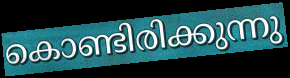
കൊണ്ടിരിക്കുന്നു